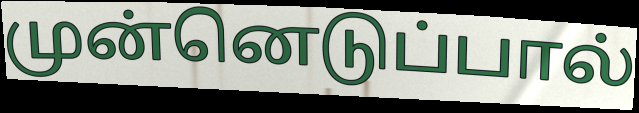
முன்னெடுப்பால்